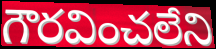
గౌరవించలేని